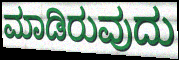
ಮಾಡಿರುವುದು